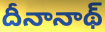
దీనానాథ్